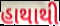
હાથાથી